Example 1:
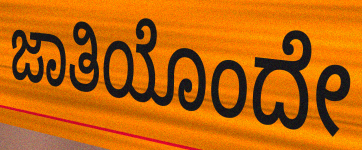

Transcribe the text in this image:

ಜಾತಿಯೊಂದೇ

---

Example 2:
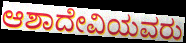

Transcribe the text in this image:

ಆಶಾದೇವಿಯವರು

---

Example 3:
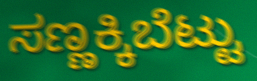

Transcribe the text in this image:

ಸಣ್ಣಕ್ಕಿಬೆಟ್ಟು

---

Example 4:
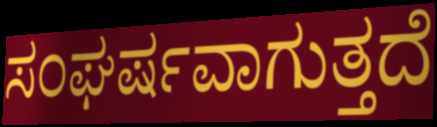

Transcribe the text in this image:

ಸಂಘರ್ಷವಾಗುತ್ತದೆ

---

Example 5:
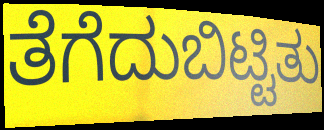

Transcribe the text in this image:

ತೆಗೆದುಬಿಟ್ಟಿತು